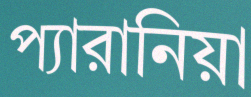
প্যারানিয়া